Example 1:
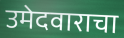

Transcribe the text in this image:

उमेदवाराचा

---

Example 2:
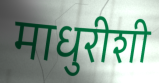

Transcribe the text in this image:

माधुरीशी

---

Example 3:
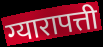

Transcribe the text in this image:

ग्यारापत्ती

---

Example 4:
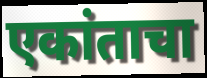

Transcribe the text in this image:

एकांताचा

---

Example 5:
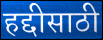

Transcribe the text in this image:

हद्दीसाठी